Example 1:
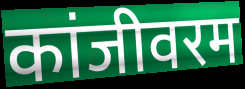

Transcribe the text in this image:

कांजीवरम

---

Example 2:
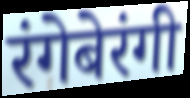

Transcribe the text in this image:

रंगेबेरंगी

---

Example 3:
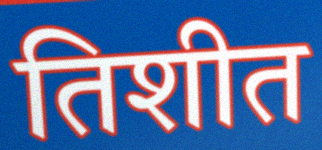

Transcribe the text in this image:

तिशीत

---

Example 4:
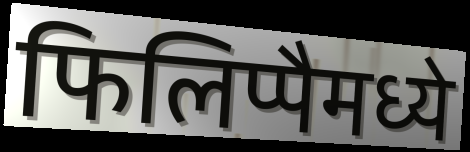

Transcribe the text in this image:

फिलिप्पैमध्ये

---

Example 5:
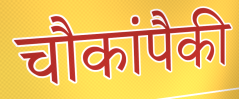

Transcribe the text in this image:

चौकांपैकी